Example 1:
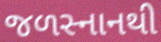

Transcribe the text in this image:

જળસ્નાનથી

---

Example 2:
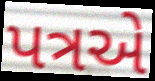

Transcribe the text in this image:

પત્રએ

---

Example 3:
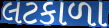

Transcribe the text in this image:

લટકાળા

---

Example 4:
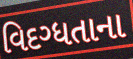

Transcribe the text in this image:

વિદગ્ધતાના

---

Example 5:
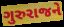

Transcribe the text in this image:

ગુરુરાજને